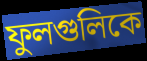
ফুলগুলিকে